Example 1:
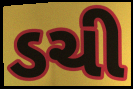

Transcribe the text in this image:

ડચી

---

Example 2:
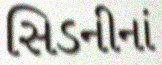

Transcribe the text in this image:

સિડનીનાં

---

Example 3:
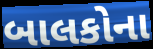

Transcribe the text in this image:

બાલકોના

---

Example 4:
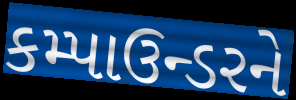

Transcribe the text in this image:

કમ્પાઉન્ડરને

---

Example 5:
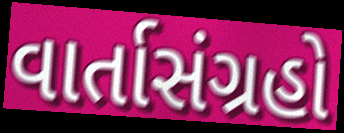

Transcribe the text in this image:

વાર્તાસંગ્રહો